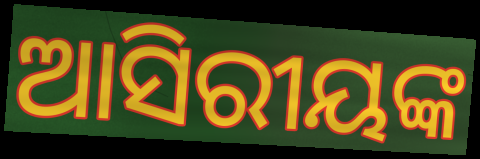
ଆସିରୀୟଙ୍କ